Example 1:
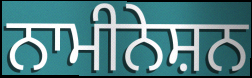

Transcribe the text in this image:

ਨਾਮੀਨੇਸ਼ਨ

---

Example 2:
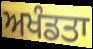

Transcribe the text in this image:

ਅਖੰਡਤਾ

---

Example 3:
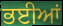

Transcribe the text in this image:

ਭਈਆਂ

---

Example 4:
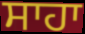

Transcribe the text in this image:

ਸਾਹਾ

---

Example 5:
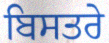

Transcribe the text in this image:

ਬਿਸਤਰੇ